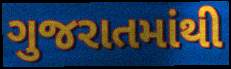
ગુજરાતમાંથી